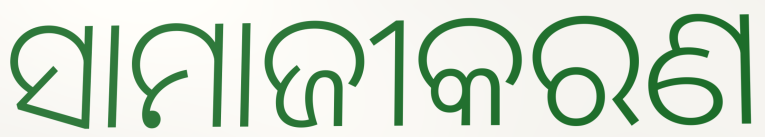
ସାମାଜୀକରଣ